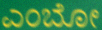
ಎಂಬೋ